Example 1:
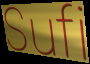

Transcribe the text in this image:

Sufi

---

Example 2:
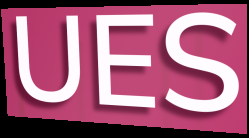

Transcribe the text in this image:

UES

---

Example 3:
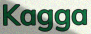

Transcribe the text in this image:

Kagga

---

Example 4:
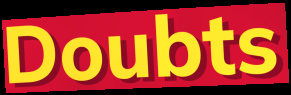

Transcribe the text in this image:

Doubts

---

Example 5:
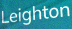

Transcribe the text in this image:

Leighton